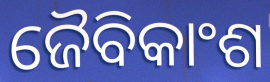
ଜୈବିକାଂଶ